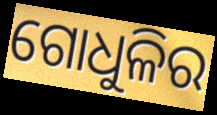
ଗୋଧୁଳିର